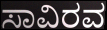
ಸಾವಿರವ